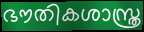
ഭൗതികശാസ്ത്ര